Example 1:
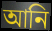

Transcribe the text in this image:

আনি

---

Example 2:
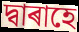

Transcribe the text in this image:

দ্বাৰাহে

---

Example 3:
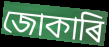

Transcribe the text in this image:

জোকাৰি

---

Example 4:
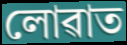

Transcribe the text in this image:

লোৱাত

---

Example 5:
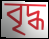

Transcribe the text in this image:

বৃদ্ধ